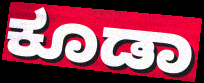
ಕೂಡಾ